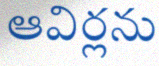
ఆవిర్లను